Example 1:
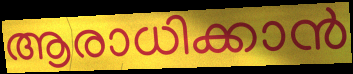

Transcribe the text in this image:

ആരാധിക്കാൻ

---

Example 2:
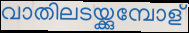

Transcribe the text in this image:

വാതിലടയ്ക്കുമ്പോള്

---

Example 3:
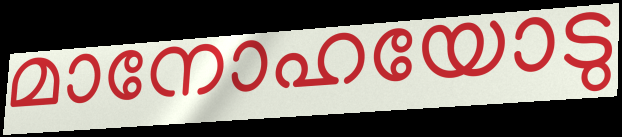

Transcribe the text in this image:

മാനോഹയോടു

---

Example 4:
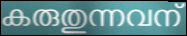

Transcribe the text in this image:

കരുതുന്നവന്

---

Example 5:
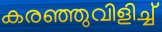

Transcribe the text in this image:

കരഞ്ഞുവിളിച്ച്